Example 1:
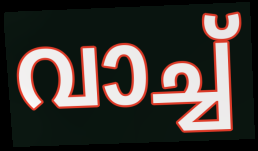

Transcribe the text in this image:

വാച്ച്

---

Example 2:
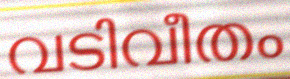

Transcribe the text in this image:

വടിവീതം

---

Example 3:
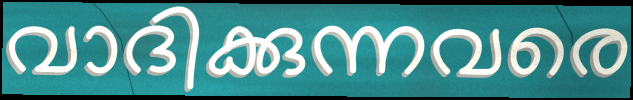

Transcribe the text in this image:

വാദിക്കുന്നവരെ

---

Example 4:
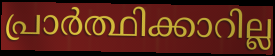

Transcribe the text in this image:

പ്രാർത്ഥിക്കാറില്ല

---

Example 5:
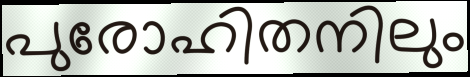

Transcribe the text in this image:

പുരോഹിതനിലും